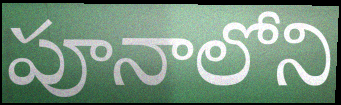
పూనాలోని